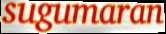
sugumaran